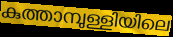
കുത്താമ്പുള്ളിയിലെ